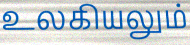
உலகியலும்